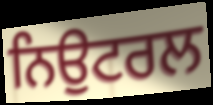
ਨਿਉਟਰਲ